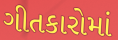
ગીતકારોમાં